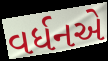
વર્ધનએ